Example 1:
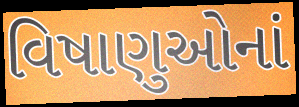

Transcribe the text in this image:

વિષાણુઓનાં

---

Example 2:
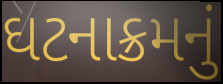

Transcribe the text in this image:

ઘટનાક્રમનું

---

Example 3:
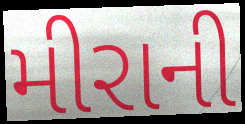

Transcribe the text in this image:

મીરાની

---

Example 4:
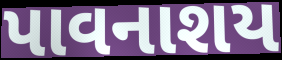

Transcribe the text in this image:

પાવનાશય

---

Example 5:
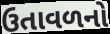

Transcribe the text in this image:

ઉતાવળનો